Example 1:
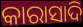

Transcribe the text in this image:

କାରାସାଦି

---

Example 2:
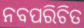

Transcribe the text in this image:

ନବପରିଚିତ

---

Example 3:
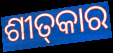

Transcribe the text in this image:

ଶୀତ୍‌କାର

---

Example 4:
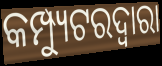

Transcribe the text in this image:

କମ୍ପ୍ୟୁଟରଦ୍ୱାରା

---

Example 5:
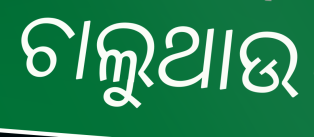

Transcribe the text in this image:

ଚାଲୁଥାଉ